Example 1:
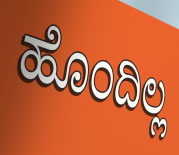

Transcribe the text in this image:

ಹೊಂದಿಲ್ಲ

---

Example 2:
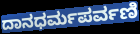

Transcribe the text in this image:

ದಾನಧರ್ಮಪರ್ವಣಿ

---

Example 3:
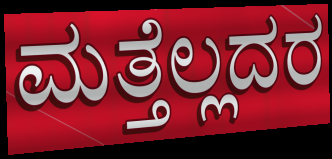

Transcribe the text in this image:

ಮತ್ತೆಲ್ಲದರ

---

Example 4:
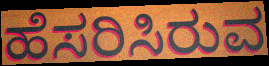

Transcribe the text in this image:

ಹೆಸರಿಸಿರುವ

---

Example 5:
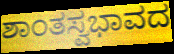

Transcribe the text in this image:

ಶಾಂತಸ್ವಭಾವದ